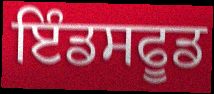
ਇੰਡਸਫੂਡ